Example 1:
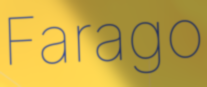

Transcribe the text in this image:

Farago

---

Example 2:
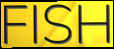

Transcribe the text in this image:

FISH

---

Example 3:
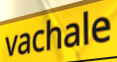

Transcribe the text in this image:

vachale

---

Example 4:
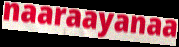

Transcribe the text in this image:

naaraayanaa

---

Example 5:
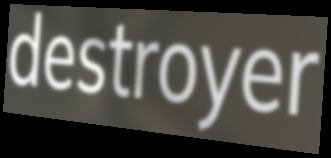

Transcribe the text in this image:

destroyer